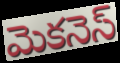
మెకనెస్